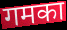
गमका